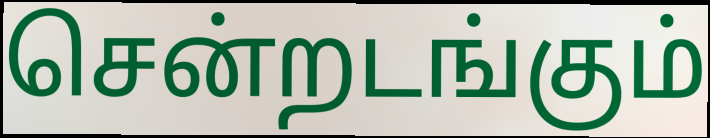
சென்றடங்கும்